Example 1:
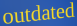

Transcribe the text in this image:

outdated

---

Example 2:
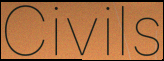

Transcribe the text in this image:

Civils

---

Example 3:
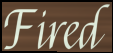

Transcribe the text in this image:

Fired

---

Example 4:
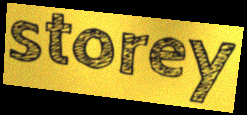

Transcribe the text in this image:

storey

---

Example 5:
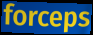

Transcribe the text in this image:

forceps